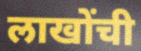
लाखोंची